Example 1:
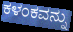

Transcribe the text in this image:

ಕಳಂಕವನ್ನು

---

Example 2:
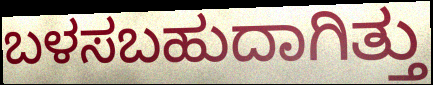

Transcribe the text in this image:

ಬಳಸಬಹುದಾಗಿತ್ತು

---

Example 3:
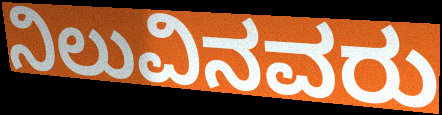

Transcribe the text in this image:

ನಿಲುವಿನವರು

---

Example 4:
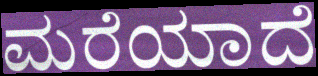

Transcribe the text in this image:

ಮರೆಯಾದೆ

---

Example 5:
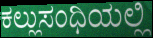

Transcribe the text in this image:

ಕಲ್ಲುಸಂಧಿಯಲ್ಲಿ